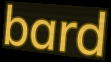
bard